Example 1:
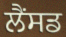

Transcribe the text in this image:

ਲੈਂਸਡ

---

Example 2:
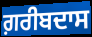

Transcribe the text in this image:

ਗ਼ਰੀਬਦਾਸ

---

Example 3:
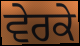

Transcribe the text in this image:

ਵੇਰਕੇ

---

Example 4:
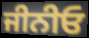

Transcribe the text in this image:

ਜੀਨੀਓ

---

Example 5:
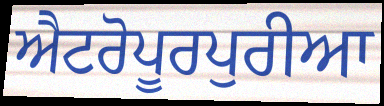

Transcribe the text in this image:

ਐਟਰੋਪੂਰਪੁਰੀਆ